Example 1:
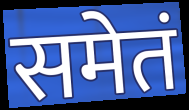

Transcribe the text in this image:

समेतं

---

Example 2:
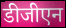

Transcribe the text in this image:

डीजीएन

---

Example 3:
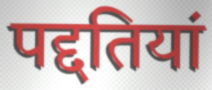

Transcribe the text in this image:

पद्दतियां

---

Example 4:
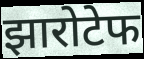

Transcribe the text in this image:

झारोटेफ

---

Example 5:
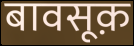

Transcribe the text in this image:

बावसूक़